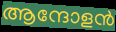
ആന്ദോളൻ